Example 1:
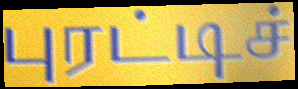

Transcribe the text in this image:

புரட்டிச்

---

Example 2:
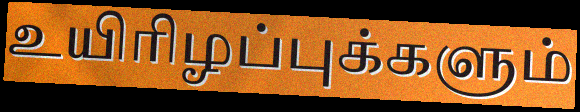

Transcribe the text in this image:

உயிரிழப்புக்களும்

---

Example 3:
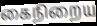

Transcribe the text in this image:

கைநிறைய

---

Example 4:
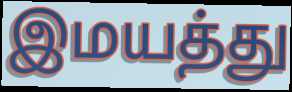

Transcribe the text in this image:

இமயத்து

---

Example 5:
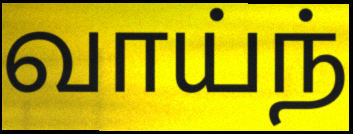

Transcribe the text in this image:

வாய்ந்